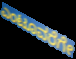
ಎಂಟೂವರೆಗೇ